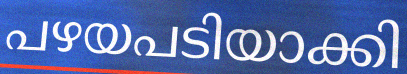
പഴയപടിയാക്കി